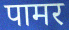
पामर